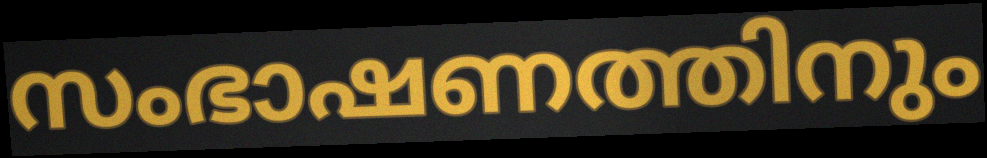
സംഭാഷണത്തിനും